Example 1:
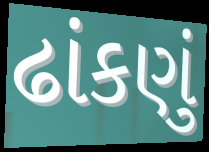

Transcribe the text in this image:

ઢાંકણું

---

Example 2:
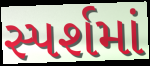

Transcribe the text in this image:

સ્પર્શમાં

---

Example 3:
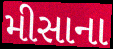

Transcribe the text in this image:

મીસાના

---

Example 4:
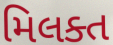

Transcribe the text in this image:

મિલક્ત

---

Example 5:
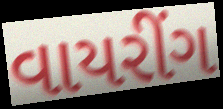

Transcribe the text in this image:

વાયરીંગ